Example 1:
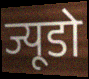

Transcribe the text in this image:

ज्यूडो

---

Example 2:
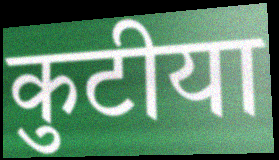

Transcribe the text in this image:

कुटीया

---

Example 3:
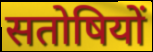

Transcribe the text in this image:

सतोषियों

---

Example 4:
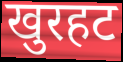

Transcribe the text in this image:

खुरहट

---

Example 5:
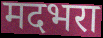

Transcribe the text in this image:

मदभरा